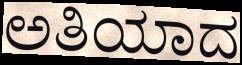
ಅತಿಯಾದ